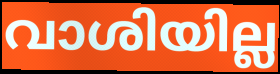
വാശിയില്ല